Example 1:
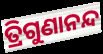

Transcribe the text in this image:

ତ୍ରିଗୁଣାନନ୍ଦ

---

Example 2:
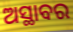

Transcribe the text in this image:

ଅସ୍ଥାବର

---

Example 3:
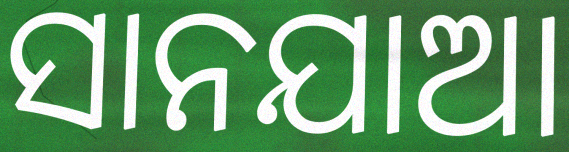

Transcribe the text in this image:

ସାନଯାଆ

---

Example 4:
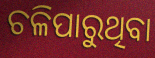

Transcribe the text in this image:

ଚଳିପାରୁଥିବା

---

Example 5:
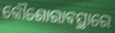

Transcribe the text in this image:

କୌଶୋରାବସ୍ଥାରେ